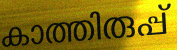
കാത്തിരുപ്പ്